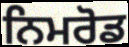
ਨਿਮਰੋਡ